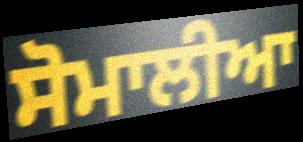
ਸੋਮਾਲੀਆ